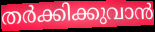
തർക്കിക്കുവാൻ